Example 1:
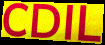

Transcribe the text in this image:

CDIL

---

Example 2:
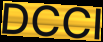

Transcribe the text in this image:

DCCI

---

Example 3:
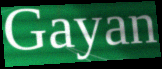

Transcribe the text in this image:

Gayan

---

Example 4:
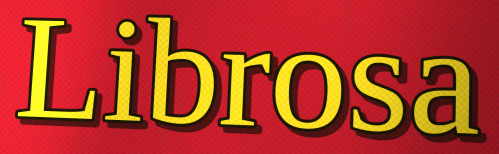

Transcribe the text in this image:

Librosa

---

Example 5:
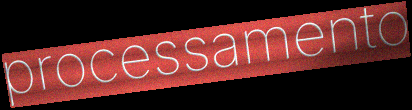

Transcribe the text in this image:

processamento